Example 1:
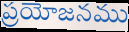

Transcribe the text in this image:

ప్రయోజనము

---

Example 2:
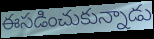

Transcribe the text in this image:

ఈసడించుకున్నాడు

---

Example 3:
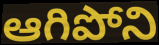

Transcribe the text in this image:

ఆగిపోని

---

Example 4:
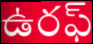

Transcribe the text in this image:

ఉరఫ్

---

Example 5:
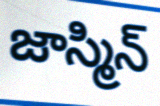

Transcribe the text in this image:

జాస్మిన్